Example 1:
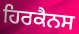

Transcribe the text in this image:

ਹਿਰਕੈਨਸ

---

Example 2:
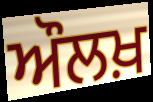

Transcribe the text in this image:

ਔਲਖ਼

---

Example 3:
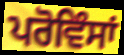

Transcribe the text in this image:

ਪਰੋਵਿੰਸਾਂ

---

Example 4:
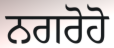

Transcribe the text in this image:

ਨਗਰੋਹੋ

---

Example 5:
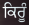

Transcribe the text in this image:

ਕਿਰੂੰ